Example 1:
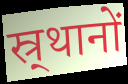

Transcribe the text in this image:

स्र्थानों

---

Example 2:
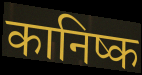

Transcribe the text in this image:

कानिष्क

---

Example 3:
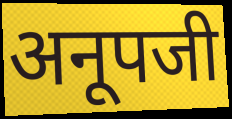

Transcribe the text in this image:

अनूपजी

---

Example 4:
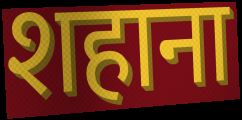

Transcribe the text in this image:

शहाना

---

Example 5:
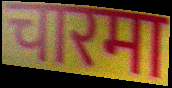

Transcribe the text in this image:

चारमा